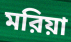
মরিয়া